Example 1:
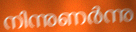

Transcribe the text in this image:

നിന്നുണർന്നു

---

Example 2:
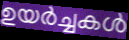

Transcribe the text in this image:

ഉയർച്ചകൾ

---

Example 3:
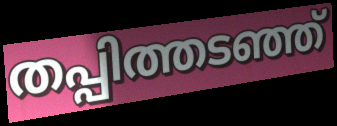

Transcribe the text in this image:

തപ്പിത്തടഞ്ഞ്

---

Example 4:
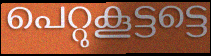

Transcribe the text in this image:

പെറ്റുകൂട്ടട്ടെ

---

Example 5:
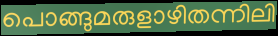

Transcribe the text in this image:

പൊങ്ങുമരുളാഴിതന്നിലി